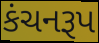
કંચનરૂપ